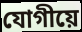
যোগীয়ে